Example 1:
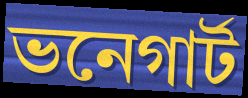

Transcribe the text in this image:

ভনেগার্ট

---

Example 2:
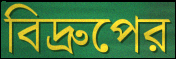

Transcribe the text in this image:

বিদ্রুপের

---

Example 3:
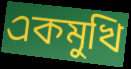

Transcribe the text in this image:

একমুখি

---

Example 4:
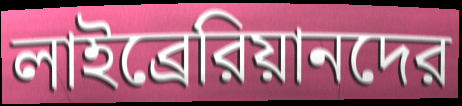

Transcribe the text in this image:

লাইব্রেরিয়ানদের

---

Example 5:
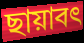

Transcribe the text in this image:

ছায়াবৎ